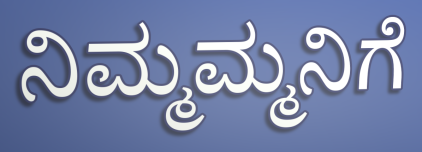
ನಿಮ್ಮಮ್ಮನಿಗೆ